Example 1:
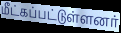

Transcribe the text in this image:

மீட்கப்பட்டுள்ளனர்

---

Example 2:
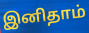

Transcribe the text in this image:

இனிதாம்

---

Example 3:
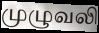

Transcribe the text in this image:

முழுவலி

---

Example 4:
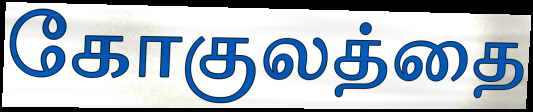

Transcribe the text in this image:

கோகுலத்தை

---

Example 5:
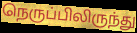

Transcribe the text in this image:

நெருப்பிலிருந்து